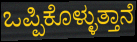
ಒಪ್ಪಿಕೊಳ್ಳುತ್ತಾನೆ